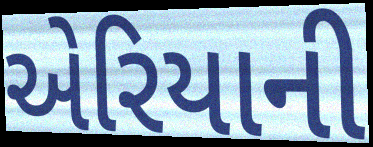
એરિયાની